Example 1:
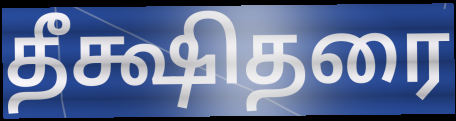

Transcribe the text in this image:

தீக்ஷிதரை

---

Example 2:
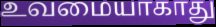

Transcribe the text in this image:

உவமையாகாது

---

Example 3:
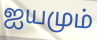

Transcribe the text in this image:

ஐயமும்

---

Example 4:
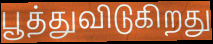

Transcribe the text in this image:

பூத்துவிடுகிறது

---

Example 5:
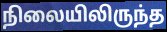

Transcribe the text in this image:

நிலையிலிருந்த